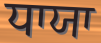
ਧਾਯਾ